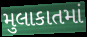
મુલાકાતમાં